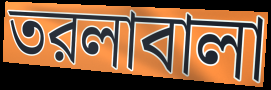
তরলাবালা